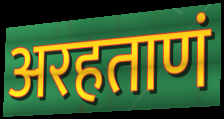
अरहताणं